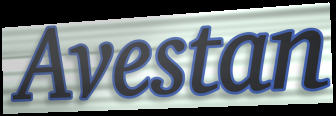
Avestan